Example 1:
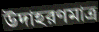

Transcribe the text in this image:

উদাহরণমাত্র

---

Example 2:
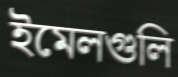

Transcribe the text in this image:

ইমেলগুলি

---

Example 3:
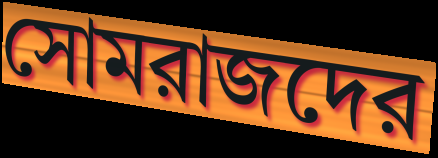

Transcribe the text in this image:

সোমরাজদের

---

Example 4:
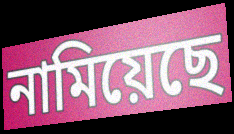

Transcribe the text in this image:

নামিয়েছে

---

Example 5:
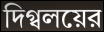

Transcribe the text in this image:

দিগ্বলয়ের